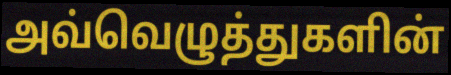
அவ்வெழுத்துகளின்